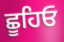
ਛੂਹਿਓ